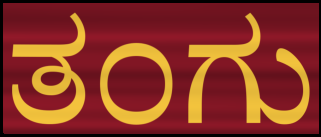
ತಂಗು